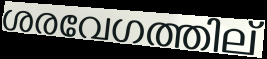
ശരവേഗത്തില്